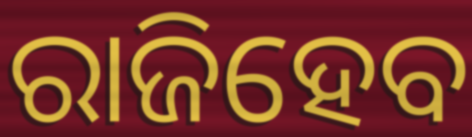
ରାଜିହେବ